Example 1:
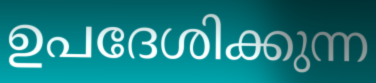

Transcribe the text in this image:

ഉപദേശിക്കുന്ന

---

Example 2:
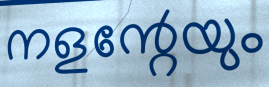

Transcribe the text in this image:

നളന്റേയും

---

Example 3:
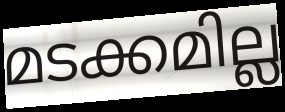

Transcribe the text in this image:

മടക്കമില്ല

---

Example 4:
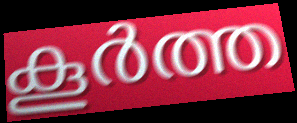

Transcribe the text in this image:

കൂർത്ത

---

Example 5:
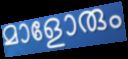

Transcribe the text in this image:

മാളോരും